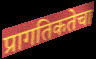
प्रागतिकतेचा